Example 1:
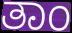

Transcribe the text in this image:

ತಾಂ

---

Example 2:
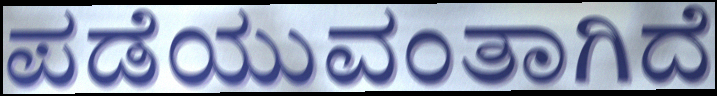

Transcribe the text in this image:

ಪಡೆಯುವಂತಾಗಿದೆ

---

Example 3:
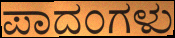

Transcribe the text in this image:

ಪಾದಂಗಳು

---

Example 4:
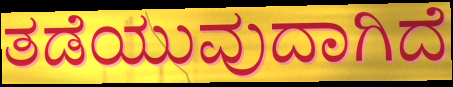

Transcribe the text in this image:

ತಡೆಯುವುದಾಗಿದೆ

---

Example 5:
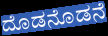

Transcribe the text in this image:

ದೊಡನೊಡನೆ